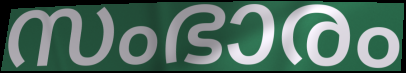
സംഭാരം